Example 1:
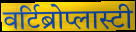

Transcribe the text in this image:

वर्टिब्रोप्लास्टी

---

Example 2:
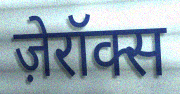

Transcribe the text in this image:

ज़ेरॉक्स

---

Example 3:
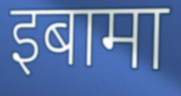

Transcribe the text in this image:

इबामा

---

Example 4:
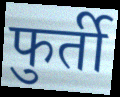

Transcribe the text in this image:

फुर्ती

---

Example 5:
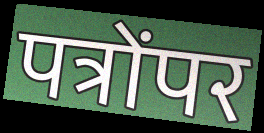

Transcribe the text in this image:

पत्रोंपर